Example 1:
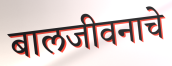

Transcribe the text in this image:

बालजीवनाचे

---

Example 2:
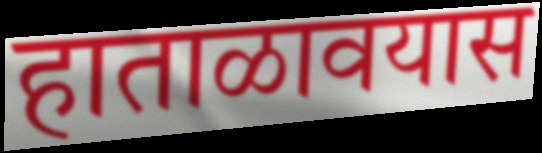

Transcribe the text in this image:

हाताळावयास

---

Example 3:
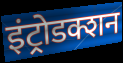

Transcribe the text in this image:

इंट्रोडक्शन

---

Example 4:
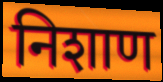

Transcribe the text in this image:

निशाण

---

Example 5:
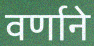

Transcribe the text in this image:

वर्णाने